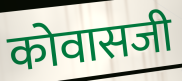
कोवासजी